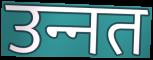
उन्‍नत